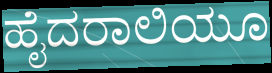
ಹೈದರಾಲಿಯೂ